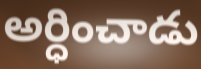
అర్ధించాడు